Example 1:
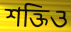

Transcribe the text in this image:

শক্তিও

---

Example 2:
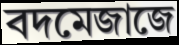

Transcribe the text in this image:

বদমেজাজে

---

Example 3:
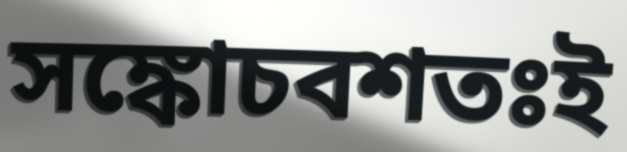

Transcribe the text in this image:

সঙ্কোচবশতঃই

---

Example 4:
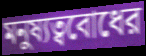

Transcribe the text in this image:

মনুষ্যত্ববোধের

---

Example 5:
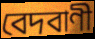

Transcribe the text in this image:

বেদবাণী